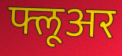
फ्लूअर